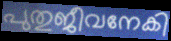
പുതുജീവനേകി